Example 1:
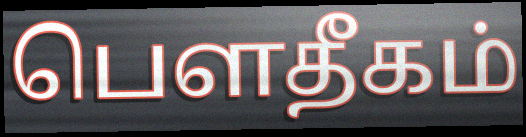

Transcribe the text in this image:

பௌதீகம்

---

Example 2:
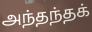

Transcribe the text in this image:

அந்தந்தக்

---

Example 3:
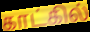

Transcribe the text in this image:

காட்கில்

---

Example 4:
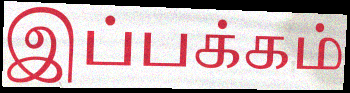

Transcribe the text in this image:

இப்பக்கம்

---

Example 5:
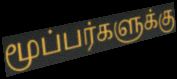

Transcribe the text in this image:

மூப்பர்களுக்கு